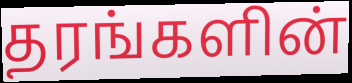
தரங்களின்